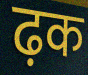
ढ़क